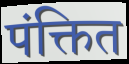
पंक्तित